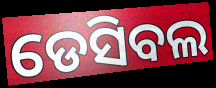
ଡେସିବଲ